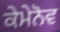
ਕੇਮੇਨੋਵ